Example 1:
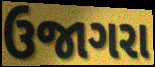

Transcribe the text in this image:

ઉજાગરા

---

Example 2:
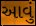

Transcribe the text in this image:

આવું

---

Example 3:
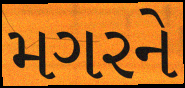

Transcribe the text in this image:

મગરને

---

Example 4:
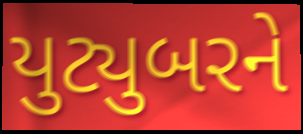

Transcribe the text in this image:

યુટ્યુબરને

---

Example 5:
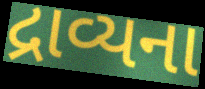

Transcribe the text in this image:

દ્રાવ્યના